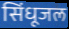
सिंधूजल